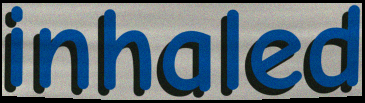
inhaled